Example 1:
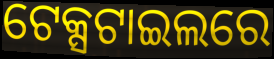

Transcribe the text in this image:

ଟେକ୍ସଟାଇଲରେ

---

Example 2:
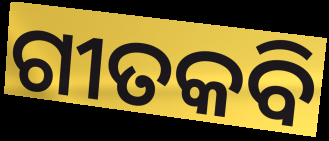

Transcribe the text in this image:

ଗୀତକବି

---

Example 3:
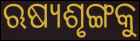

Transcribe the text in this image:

ଋଷ୍ୟଶୃଙ୍ଗକୁ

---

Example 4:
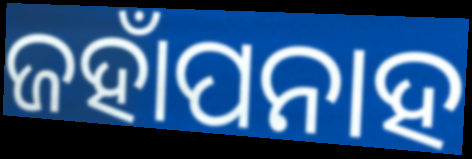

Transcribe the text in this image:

ଜହାଁପନାହ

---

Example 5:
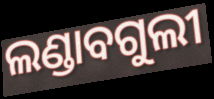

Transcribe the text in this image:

ଲଣ୍ଡାବଗୁଲୀ